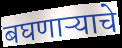
बघणाऱ्याचे